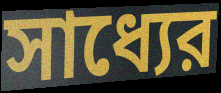
সাধ্যের